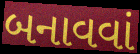
બનાવવાં